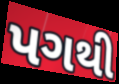
પગથી